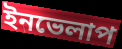
ইনভেলাপ